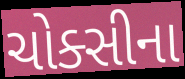
ચોક્સીના